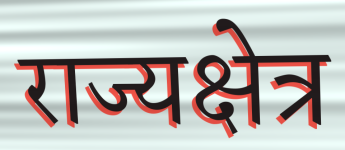
राज्यक्षेत्र